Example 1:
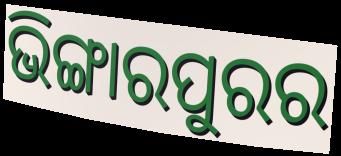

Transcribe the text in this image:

ଭିଙ୍ଗାରପୁରର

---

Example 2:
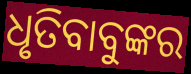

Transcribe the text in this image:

ଧୃତିବାବୁଙ୍କର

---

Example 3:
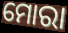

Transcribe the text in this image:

ମୋରା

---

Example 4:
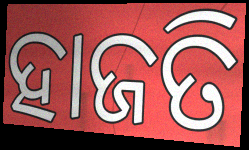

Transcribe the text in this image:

ହାଜତି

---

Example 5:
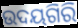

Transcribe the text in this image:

ଉଦୟଗିରି